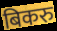
बिकरु